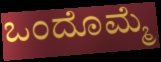
ಒಂದೊಮ್ಮೆ